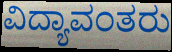
ವಿದ್ಯಾವಂತರು